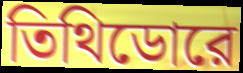
তিথিডোরে